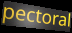
pectoral